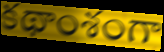
కథాంశంగా